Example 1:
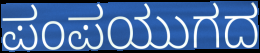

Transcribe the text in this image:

ಪಂಪಯುಗದ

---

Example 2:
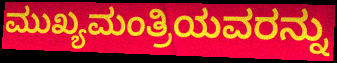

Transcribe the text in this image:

ಮುಖ್ಯಮಂತ್ರಿಯವರನ್ನು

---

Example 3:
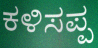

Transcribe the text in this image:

ಕಳಿಸಪ್ಪ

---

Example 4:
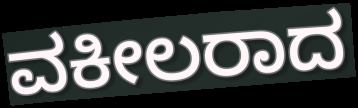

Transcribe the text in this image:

ವಕೀಲರಾದ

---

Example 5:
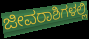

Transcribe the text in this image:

ಜೀವರಾಶಿಗಳಲ್ಲಿ